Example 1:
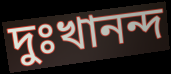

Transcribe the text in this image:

দুঃখানন্দ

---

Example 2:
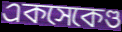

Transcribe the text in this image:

একসেকেণ্ড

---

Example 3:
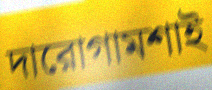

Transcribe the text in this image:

দারোগামশাই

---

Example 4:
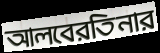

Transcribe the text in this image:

আলবেরতিনার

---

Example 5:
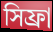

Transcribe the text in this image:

সিফ্রা